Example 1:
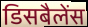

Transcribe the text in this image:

डिसबैलेंस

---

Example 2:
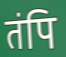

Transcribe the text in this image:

तंपि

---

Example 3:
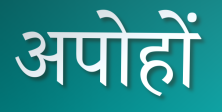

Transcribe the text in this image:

अपोहों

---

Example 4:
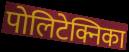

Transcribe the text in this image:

पोलिटेक्निका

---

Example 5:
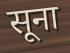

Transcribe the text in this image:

सूना